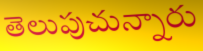
తెలుపుచున్నారు